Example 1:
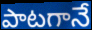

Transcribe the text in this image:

పాటగానే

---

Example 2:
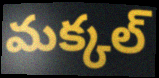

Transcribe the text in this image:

మక్కల్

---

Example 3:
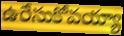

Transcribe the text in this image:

ఉరేసుకోవయ్యా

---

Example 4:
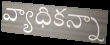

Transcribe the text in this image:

వ్యాధికన్నా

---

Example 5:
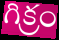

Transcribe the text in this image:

గిక్రం